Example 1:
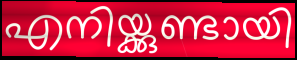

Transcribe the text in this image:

എനിയ്ക്കുണ്ടായി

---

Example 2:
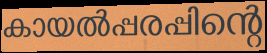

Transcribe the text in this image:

കായൽപ്പരപ്പിന്റെ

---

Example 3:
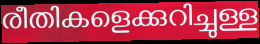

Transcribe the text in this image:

രീതികളെക്കുറിച്ചുള്ള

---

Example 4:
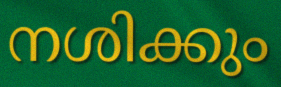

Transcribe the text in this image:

നശിക്കും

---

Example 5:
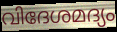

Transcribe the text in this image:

വിദേശമദ്യം